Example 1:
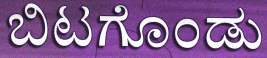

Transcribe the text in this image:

ಬಿಟಗೊಂಡು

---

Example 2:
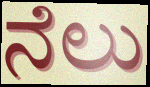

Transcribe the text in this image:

ನೆಲು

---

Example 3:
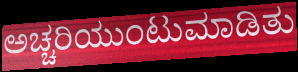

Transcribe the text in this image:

ಅಚ್ಚರಿಯುಂಟುಮಾಡಿತು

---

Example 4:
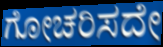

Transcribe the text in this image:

ಗೋಚರಿಸದೇ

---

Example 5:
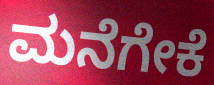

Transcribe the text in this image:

ಮನೆಗೇಕೆ